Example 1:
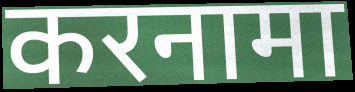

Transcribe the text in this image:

करनामा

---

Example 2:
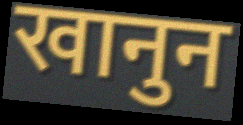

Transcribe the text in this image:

खानुन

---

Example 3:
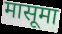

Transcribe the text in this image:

मासूमा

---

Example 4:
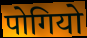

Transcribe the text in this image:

पोगियो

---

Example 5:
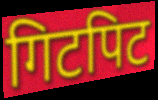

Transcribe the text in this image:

गिटपिट